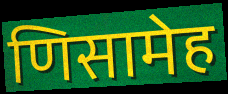
णिसामेह